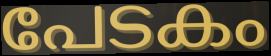
പേടകം